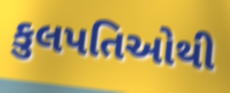
કુલપતિઓથી